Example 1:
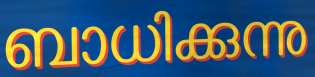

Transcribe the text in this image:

ബാധിക്കുന്നു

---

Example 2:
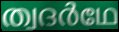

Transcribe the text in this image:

ത്വദർഥേ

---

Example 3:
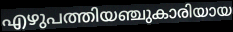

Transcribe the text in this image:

എഴുപത്തിയഞ്ചുകാരിയായ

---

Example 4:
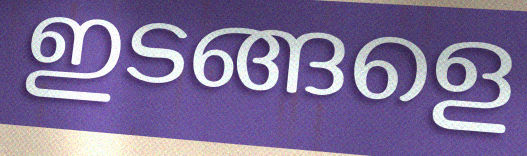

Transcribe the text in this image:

ഇടങ്ങളെ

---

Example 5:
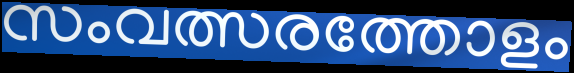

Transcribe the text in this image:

സംവത്സരത്തോളം